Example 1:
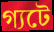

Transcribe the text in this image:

গ্যটে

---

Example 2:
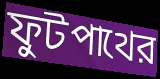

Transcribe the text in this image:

ফুটপাথের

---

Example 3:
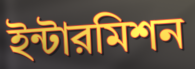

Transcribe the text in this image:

ইন্টারমিশন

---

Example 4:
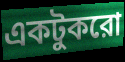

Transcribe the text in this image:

একটুকরো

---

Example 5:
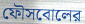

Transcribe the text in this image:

ফৌসবোলের